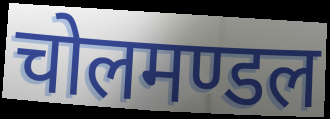
चोलमण्डल